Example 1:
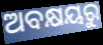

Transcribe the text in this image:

ଅବକ୍ଷୟରୁ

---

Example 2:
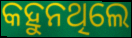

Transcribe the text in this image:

କହୁନଥିଲେ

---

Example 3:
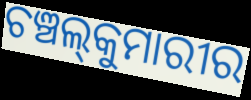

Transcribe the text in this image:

ଚଞ୍ଚଲ୍‍କୁମାରୀର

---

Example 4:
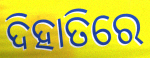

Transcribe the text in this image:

ଦିହାତିରେ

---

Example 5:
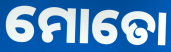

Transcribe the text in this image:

ମୋତୋ